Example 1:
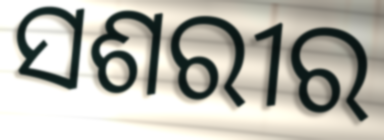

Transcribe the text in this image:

ସଶରୀର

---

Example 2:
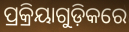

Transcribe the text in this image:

ପ୍ରକ୍ରିୟାଗୁଡ଼ିକରେ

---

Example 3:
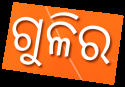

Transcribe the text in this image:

ଗୁଳିର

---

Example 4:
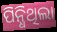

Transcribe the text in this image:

ପିନ୍ଧିଥିଲା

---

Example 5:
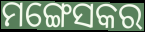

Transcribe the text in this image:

ମଙ୍ଗେସକର